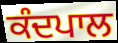
ਕੰਦਪਾਲ